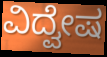
ವಿದ್ವೇಷ